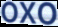
oxo